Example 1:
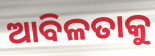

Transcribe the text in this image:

ଆବିଳତାକୁ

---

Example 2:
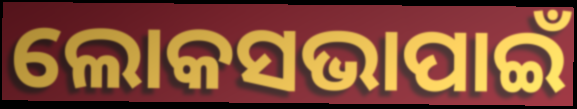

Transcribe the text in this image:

ଲୋକସଭାପାଇଁ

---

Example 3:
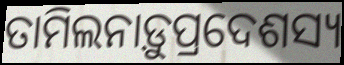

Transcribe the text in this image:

ତାମିଲନାଡ଼ୁପ୍ରଦେଶସ୍ୟ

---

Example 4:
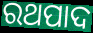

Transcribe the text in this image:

ରଥପାଦ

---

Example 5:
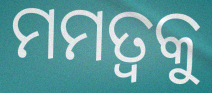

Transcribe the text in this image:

ମମତ୍ୱକୁ